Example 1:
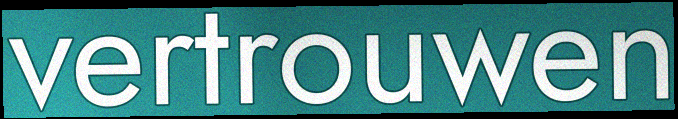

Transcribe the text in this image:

vertrouwen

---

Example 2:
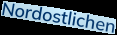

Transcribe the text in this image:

Nordostlichen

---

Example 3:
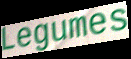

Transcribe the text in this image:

Legumes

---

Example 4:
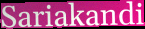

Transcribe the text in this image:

Sariakandi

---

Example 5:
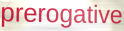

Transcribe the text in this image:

prerogative